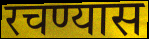
रचण्यास